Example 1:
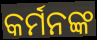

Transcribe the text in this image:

କର୍ମନଙ୍କ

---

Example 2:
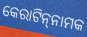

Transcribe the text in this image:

କେରାଟିନ୍‌ନାମକ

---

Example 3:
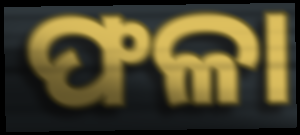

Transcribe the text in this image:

ଫଳା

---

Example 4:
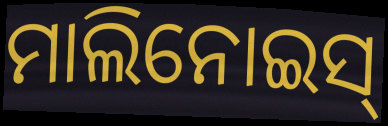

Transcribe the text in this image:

ମାଲିନୋଇସ୍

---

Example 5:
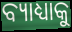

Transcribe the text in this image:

ବ୍ୟାଧ୍ୟାକୁ